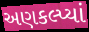
અણકલ્પ્યાં